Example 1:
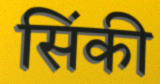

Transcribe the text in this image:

सिंकी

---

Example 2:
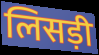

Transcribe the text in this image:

लिसड़ी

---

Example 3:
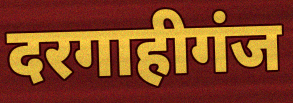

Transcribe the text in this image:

दरगाहीगंज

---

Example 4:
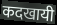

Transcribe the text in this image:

कदखायी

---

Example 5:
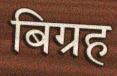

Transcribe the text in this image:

बिग्रह